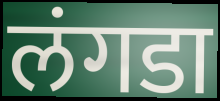
लंगडा